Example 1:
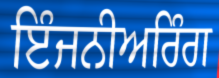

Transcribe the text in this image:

ਇੰਜਨੀਅਰਿੰਗ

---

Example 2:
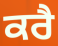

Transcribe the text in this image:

ਕਰੈ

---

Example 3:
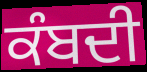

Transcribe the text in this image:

ਕੰਬਦੀ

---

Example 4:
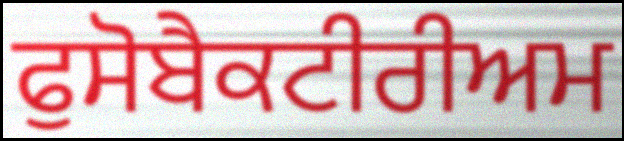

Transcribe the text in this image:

ਫੁਸੋਬੈਕਟੀਰੀਅਮ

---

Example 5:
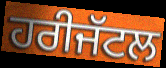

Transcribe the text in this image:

ਹਰੀਜੱਟਲ